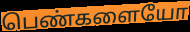
பெண்களையோ